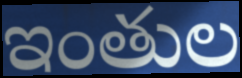
ఇంతుల